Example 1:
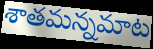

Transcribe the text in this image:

శాతమన్నమాట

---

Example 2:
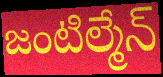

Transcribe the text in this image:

జంటిల్మేన్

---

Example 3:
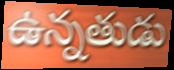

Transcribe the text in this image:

ఉన్నతుడు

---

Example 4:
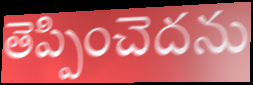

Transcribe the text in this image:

తెప్పించెదను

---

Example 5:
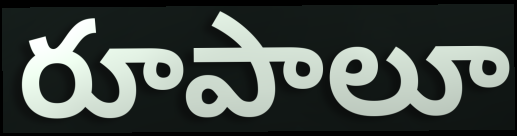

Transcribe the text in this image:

రూపాలూ